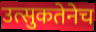
उत्सुकतेनेच